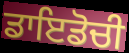
ਡਾਇਡੋਚੀ